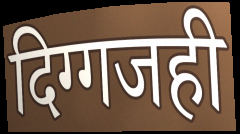
दिग्गजही